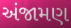
અંજામણ